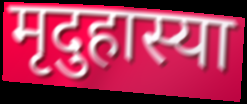
मृदुहास्या